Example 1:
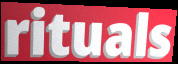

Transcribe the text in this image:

rituals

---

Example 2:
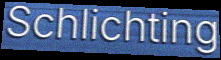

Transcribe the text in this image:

Schlichting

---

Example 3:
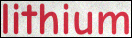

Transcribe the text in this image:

lithium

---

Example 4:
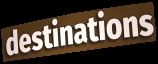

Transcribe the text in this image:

destinations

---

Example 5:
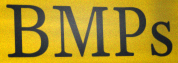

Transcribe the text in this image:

BMPs